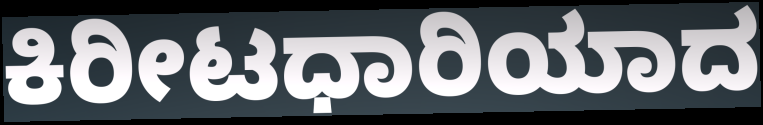
ಕಿರೀಟಧಾರಿಯಾದ